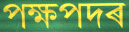
পক্ষপদৰ